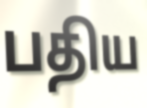
பதிய